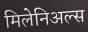
मिलेनिअल्स